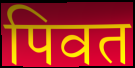
पिवत